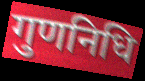
गुणनिधि